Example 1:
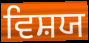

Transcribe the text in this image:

ਵਿਸ਼ਯ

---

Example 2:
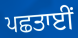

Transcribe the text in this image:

ਪਛਤਾਈਂ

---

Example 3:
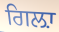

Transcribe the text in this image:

ਗਿਲ਼ਾ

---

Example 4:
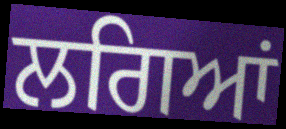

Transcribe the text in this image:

ਲਗਿਆਂ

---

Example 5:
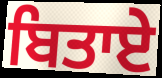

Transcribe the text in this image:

ਬਿਤਾਏ